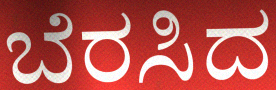
ಬೆರಸಿದ